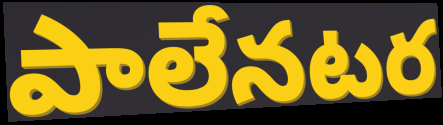
పాలేనటర